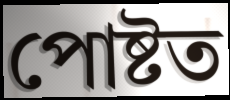
পোষ্টত